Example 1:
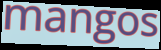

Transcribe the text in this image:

mangos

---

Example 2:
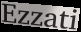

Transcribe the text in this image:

Ezzati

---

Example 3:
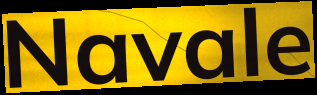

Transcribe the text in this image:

Navale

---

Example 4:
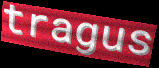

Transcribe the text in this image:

tragus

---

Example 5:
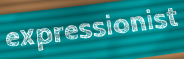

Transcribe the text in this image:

expressionist